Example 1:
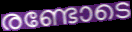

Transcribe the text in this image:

രണ്ടോടെ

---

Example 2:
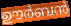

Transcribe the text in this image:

ഊർബൻ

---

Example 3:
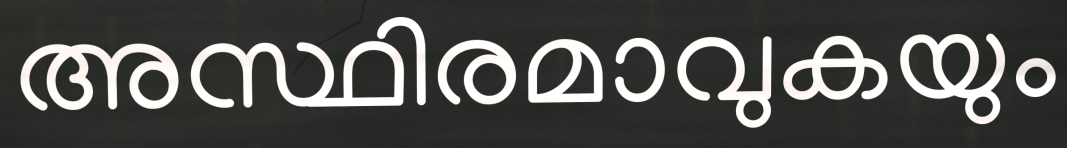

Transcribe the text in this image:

അസ്ഥിരമാവുകയും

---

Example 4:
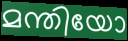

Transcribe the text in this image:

മന്തിയോ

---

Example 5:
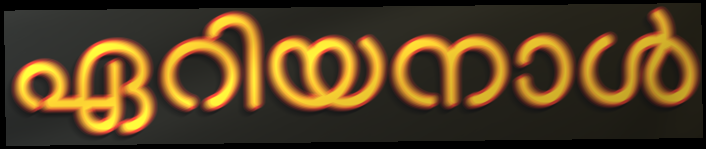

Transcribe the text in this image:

ഏറിയനാൾ